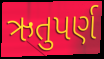
ઋતુપર્ણ